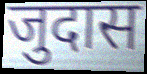
जुदास